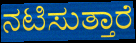
ನಟಿಸುತ್ತಾರೆ